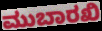
ಮುಬಾರಖಿ